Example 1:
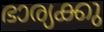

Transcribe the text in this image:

ഭാര്യക്കു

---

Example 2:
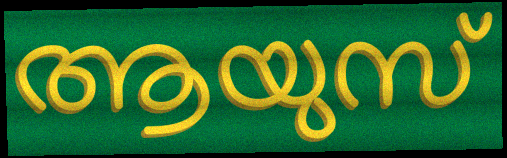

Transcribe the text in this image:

ആയുസ്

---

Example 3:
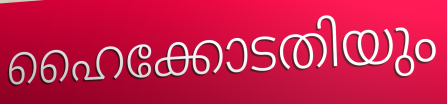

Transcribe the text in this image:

ഹൈക്കോടതിയും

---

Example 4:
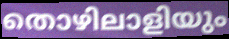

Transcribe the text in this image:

തൊഴിലാളിയും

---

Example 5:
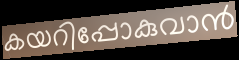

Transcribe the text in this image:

കയറിപ്പോകുവാൻ